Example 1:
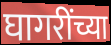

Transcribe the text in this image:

घागरींच्या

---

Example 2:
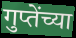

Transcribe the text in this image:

गुप्तेंच्या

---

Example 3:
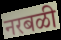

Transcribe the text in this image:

नरबळी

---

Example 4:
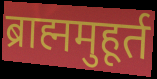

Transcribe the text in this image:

ब्राह्ममुहूर्त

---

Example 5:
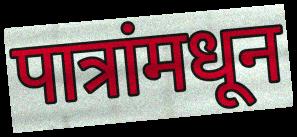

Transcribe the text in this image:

पात्रांमधून